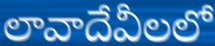
లావాదేవీలలో